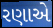
રણાએ